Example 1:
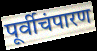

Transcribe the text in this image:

पूर्वीचंपारण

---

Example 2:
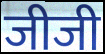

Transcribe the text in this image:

जीजी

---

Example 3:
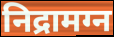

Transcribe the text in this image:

निद्रामग्न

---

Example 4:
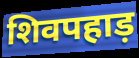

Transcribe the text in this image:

शिवपहाड़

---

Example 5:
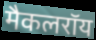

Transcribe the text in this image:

मैकलरॉय